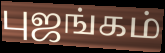
புஜங்கம்